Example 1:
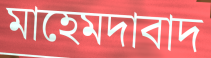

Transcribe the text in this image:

মাহেমদাবাদ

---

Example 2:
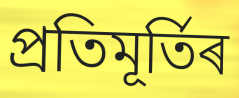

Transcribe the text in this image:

প্ৰতিমূৰ্তিৰ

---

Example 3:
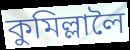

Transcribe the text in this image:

কুমিল্লালৈ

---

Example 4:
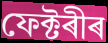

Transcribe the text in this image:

ফেক্টৰীৰ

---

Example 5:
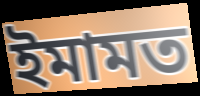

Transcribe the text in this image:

ইমামত